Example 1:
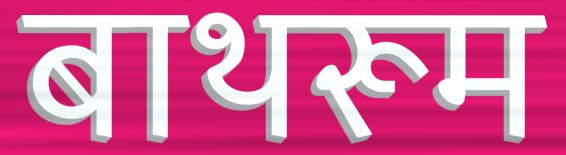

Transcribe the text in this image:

बाथरूम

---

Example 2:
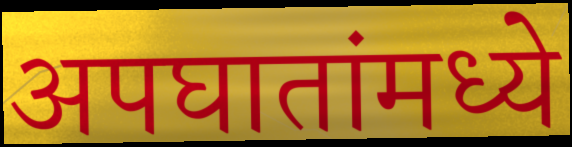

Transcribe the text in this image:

अपघातांमध्ये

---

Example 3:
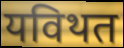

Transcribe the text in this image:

यविथत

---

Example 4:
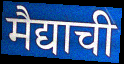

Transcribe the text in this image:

मैद्याची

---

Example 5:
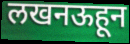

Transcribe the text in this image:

लखनऊहून